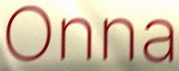
Onna